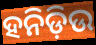
ହନିଡ଼ିଉ